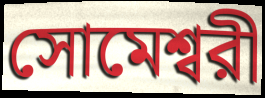
সোমেশ্বরী